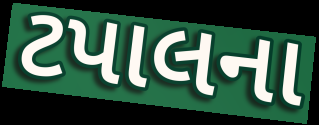
ટપાલના